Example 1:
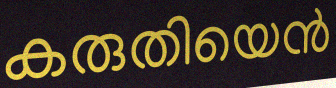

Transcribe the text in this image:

കരുതിയെൻ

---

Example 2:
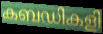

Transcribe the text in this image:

കബഡികളി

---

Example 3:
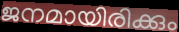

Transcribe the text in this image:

ജനമായിരിക്കും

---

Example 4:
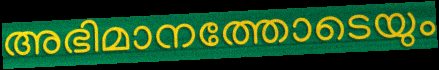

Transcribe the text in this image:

അഭിമാനത്തോടെയും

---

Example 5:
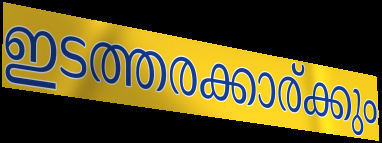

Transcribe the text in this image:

ഇടത്തരക്കാര്ക്കും